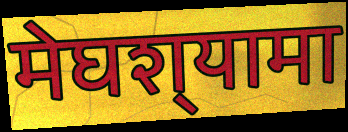
मेघश्यामा